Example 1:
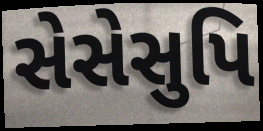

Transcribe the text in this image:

સેસેસુપિ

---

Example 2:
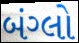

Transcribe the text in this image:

બંગ્લો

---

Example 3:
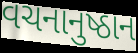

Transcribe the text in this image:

વચનાનુષ્ઠાન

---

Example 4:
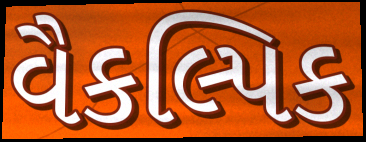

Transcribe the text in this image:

વૈકલ્પિક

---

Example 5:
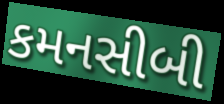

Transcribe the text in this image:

કમનસીબી